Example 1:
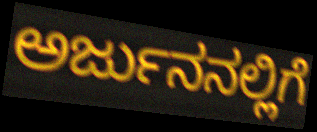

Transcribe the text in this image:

ಅರ್ಜುನನಲ್ಲಿಗೆ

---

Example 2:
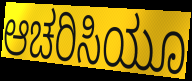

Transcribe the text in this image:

ಆಚರಿಸಿಯೂ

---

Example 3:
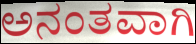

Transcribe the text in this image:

ಅನಂತವಾಗಿ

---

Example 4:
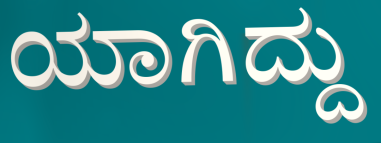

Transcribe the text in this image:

ಯಾಗಿದ್ದು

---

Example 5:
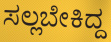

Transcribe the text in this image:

ಸಲ್ಲಬೇಕಿದ್ದ